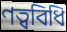
ণত্ববিধি